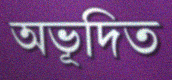
অভূদিত